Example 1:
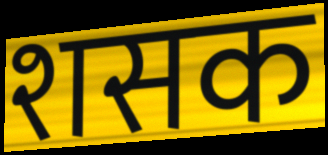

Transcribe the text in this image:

शसक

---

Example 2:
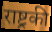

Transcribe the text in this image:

राष्ट्रकी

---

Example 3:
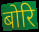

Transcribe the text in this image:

बोरि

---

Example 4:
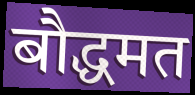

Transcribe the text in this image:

बौद्धमत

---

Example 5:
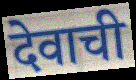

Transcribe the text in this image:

देवाची